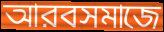
আরবসমাজে